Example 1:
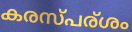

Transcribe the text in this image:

കരസ്പര്ശം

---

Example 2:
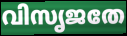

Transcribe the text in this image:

വിസൃജതേ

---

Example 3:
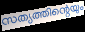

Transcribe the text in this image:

സത്യത്തിന്റെയും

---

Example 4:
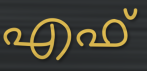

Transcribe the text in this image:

എഫ്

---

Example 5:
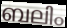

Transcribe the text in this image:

ബലിം